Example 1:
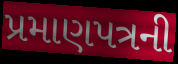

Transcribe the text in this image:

પ્રમાણપત્રની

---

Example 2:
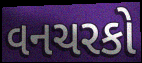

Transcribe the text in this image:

વનચરકો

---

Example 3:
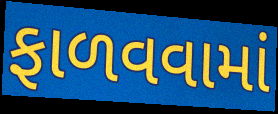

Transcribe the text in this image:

ફાળવવામાં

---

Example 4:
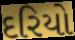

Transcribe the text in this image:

દરિયો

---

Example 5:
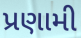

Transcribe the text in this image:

પ્રણામી